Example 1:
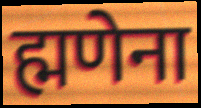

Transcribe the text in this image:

ह्मणेना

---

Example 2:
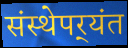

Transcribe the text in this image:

संस्थेपर्यंत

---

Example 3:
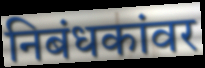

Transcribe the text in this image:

निबंधकांवर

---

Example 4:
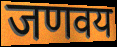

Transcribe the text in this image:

जणवय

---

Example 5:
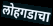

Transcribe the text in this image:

लोहगडाचा